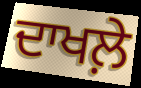
ਦਾਖਲ਼ੇ